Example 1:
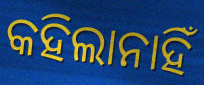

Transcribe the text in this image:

କହିଲାନାହିଁ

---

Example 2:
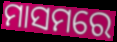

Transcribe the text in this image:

ମାସମରେ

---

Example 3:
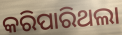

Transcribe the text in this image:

କରିପାରିଥଲା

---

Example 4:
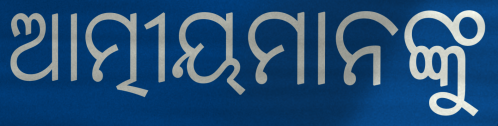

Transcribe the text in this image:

ଆତ୍ମୀୟମାନଙ୍କୁ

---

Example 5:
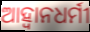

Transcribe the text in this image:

ଆହ୍ବାନଧର୍ମୀ